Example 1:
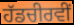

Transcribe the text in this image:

ਹੱਡਚੀਰਵੀਂ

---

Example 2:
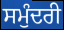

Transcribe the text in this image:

ਸਮੁੰਦਰੀ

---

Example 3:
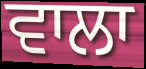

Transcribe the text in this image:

ਵਾਲਾ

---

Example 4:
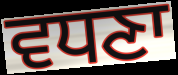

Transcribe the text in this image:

ਵਧਣਾ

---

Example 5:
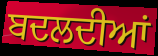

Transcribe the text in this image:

ਬਦਲਦੀਆਂ